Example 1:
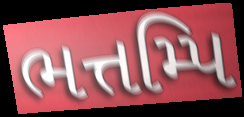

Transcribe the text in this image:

ભત્તમ્પિ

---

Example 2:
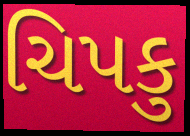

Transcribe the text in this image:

ચિપકુ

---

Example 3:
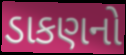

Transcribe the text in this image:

ડાકણનો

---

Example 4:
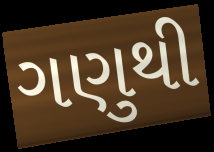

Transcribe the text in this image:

ગણુથી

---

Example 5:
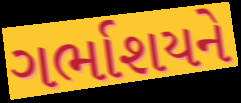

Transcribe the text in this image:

ગર્ભાશયને